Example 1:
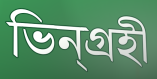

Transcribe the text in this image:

ভিন্গ্রহী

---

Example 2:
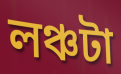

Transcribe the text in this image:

লঞ্চটা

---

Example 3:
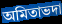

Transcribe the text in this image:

অমিতাভদা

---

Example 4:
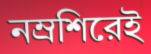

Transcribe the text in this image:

নম্রশিরেই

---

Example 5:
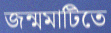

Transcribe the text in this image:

জন্মমাটিতে